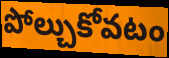
పోల్చుకోవటం